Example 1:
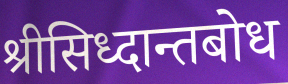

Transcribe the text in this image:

श्रीसिध्दान्तबोध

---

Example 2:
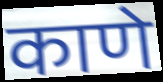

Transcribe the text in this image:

काणे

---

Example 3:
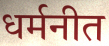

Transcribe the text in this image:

धर्मनीत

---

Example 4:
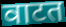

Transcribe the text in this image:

वाटत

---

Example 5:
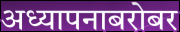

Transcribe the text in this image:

अध्यापनाबरोबर